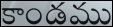
కాండము